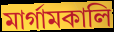
মাৰ্গামকালি